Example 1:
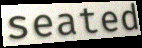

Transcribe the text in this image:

seated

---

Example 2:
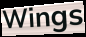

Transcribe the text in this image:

Wings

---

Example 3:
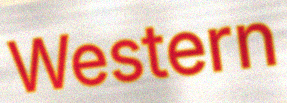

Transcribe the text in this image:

Western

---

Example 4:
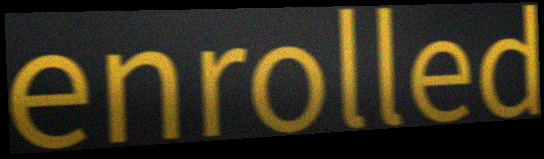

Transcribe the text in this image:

enrolled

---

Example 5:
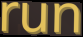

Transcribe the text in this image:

run